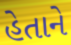
હેતાને